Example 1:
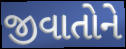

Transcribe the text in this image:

જીવાતોને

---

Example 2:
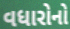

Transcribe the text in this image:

વધારોનો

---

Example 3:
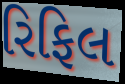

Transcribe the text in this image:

રિફિલ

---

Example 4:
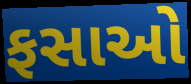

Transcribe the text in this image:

ફસાઓ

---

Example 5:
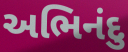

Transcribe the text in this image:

અભિનંદુ